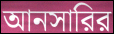
আনসারির